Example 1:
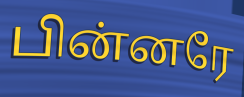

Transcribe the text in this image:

பின்னரே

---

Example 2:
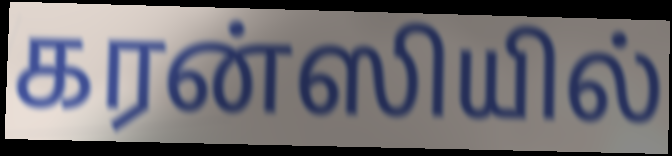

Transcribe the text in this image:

கரன்ஸியில்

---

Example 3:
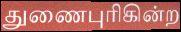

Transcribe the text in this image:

துணைபுரிகின்ற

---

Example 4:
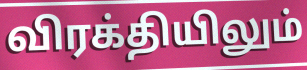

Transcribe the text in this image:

விரக்தியிலும்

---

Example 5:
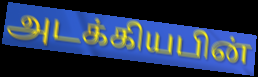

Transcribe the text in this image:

அடக்கியபின்